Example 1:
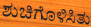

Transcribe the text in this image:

ಶುಚಿಗೊಳಿಸಿತು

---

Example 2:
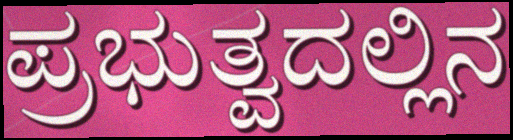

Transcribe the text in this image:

ಪ್ರಭುತ್ವದಲ್ಲಿನ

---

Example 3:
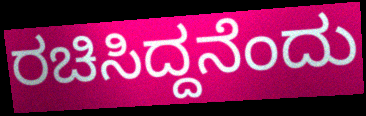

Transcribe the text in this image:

ರಚಿಸಿದ್ದನೆಂದು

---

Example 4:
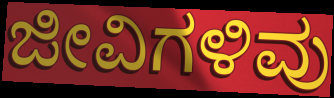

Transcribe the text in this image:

ಜೀವಿಗಳಿವು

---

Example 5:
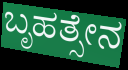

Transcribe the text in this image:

ಬೃಹತ್ಸೇನ